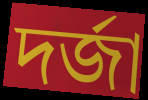
দৰ্জা